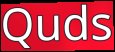
Quds